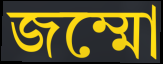
জম্মো